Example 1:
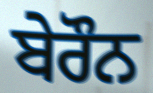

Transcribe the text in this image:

ਬੇਰੌਨ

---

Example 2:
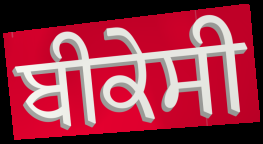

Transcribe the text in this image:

ਬੀਕੇਸੀ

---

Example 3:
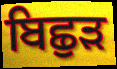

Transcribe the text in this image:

ਬਿਛੁੜ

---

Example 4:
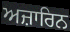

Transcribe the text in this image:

ਅਜ਼ਾਰਿਨ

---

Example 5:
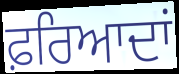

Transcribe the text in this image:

ਫ਼ਰਿਆਦਾਂ